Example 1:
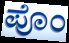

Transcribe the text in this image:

ಪೊಂ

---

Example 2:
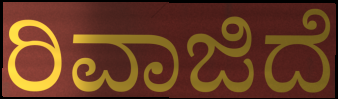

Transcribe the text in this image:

ರಿವಾಜಿದೆ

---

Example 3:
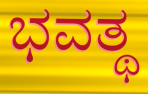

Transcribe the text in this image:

ಭವತ್ಥ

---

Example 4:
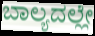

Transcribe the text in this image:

ಬಾಲ್ಯದಲ್ಲೇ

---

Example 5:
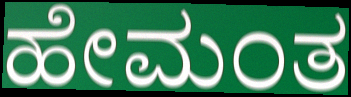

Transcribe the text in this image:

ಹೇಮಂತ